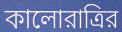
কালোরাত্রির